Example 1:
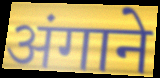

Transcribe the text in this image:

अंगाने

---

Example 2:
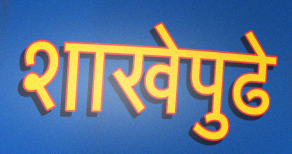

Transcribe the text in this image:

शाखेपुढे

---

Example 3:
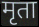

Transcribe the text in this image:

मृता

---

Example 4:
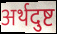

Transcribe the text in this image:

अर्थदुष्ट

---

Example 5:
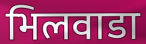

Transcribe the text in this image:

भिलवाडा